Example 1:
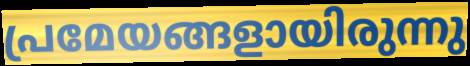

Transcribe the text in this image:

പ്രമേയങ്ങളായിരുന്നു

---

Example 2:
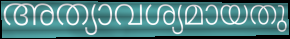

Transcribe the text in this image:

അത്യാവശ്യമായതു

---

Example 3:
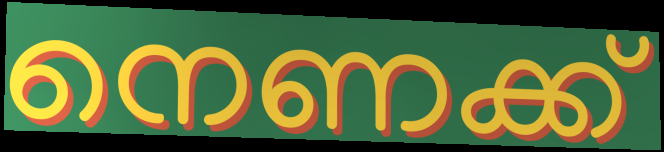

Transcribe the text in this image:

നെണക്ക്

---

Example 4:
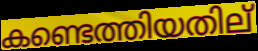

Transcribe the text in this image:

കണ്ടെത്തിയതില്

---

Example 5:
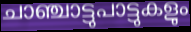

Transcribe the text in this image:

ചാഞ്ചാട്ടുപാട്ടുകളും